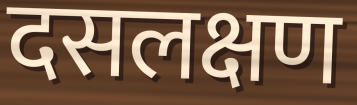
दसलक्षण